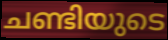
ചണ്ടിയുടെ